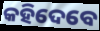
କହିଦେବେ